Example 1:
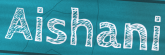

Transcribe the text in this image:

Aishani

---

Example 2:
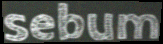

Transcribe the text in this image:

sebum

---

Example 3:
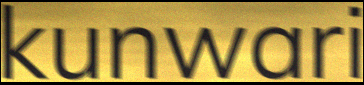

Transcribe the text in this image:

kunwari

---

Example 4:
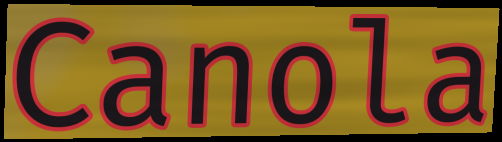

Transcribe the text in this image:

Canola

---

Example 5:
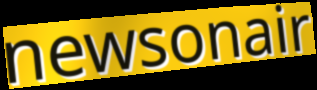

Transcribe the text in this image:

newsonair